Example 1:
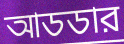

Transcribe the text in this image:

আডডার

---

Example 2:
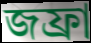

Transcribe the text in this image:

জফ্রা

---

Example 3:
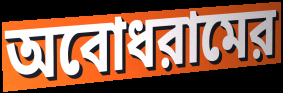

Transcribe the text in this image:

অবোধরামের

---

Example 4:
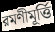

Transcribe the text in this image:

রমণীমূর্ত্তি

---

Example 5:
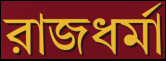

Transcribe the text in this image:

রাজধর্মা